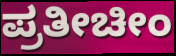
ಪ್ರತೀಚೀಂ